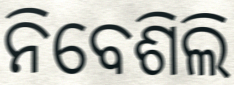
ନିବେଶିଲି